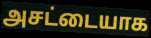
அசட்டையாக